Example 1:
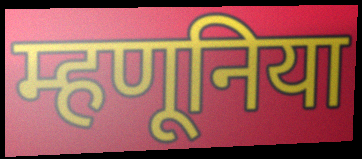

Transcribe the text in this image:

म्हणूनिया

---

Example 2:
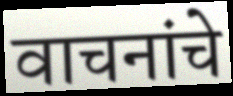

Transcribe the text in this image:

वाचनांचे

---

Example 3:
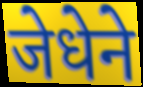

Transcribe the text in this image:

जेधेने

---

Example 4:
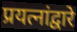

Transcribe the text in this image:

प्रयत्नांद्वारे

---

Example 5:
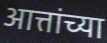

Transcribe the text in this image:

आत्तांच्या